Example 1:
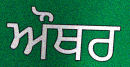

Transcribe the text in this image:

ਔਥਰ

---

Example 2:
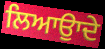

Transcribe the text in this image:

ਲਿਆਉਾਦੇ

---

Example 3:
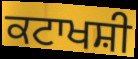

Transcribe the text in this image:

ਕਟਾਖਸ਼ੀ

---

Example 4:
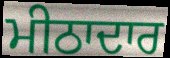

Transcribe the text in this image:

ਮੀਠਾਦਾਰ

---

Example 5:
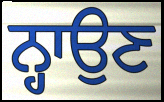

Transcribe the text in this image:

ਨ੍ਹਾਉਣ